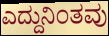
ಎದ್ದುನಿಂತವು